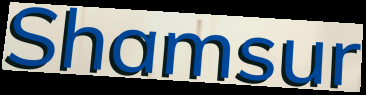
Shamsur